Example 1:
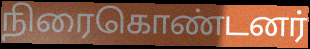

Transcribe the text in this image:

நிரைகொண்டனர்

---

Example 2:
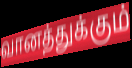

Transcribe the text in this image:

வானத்துக்கும்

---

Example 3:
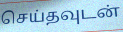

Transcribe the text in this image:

செய்தவுடன்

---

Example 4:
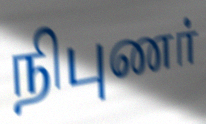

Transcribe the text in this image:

நிபுணர்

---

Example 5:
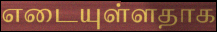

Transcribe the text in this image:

எடையுள்ளதாக